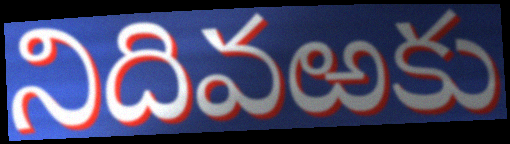
నిదివఱకు